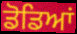
ਡੋਡਿਆਂ